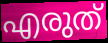
എരുത്